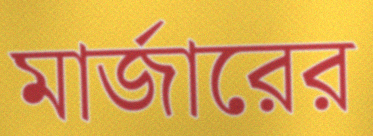
মার্জারের